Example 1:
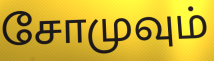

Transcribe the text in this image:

சோமுவும்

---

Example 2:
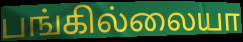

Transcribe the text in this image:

பங்கில்லையா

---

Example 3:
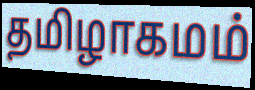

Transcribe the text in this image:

தமிழாகமம்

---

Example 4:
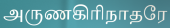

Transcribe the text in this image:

அருணகிரிநாதரே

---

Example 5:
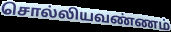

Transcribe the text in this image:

சொல்லியவண்ணம்